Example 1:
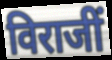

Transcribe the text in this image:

विराजीं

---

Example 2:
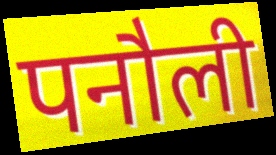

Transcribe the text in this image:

पनौली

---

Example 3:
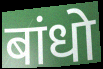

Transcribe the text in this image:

बांधो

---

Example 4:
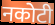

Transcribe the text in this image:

नकोटी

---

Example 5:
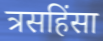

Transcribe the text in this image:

त्रसहिंसा